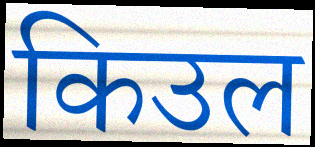
किउल